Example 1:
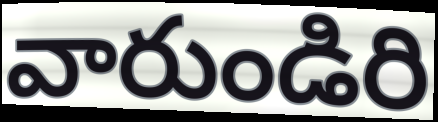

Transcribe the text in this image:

వారుండిరి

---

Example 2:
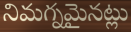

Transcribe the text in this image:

నిమగ్నమైనట్లు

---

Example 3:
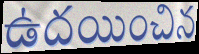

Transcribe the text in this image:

ఉదయించిన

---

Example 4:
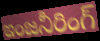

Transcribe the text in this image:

ఇంజనీరింగ్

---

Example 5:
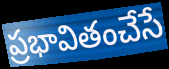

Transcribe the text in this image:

ప్రభావితంచేసే